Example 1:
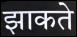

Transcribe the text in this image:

झाकते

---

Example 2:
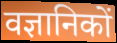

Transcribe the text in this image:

वज्ञानिकों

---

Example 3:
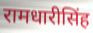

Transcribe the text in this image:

रामधारीसिंह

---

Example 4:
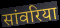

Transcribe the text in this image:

सांवरिया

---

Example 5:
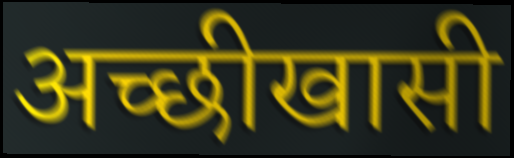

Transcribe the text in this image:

अच्छीखासी